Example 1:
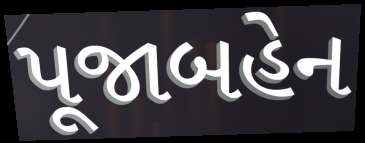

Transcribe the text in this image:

પૂજાબહેન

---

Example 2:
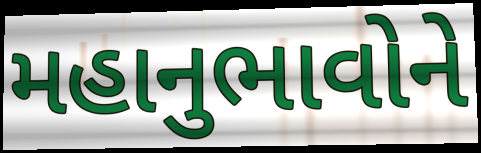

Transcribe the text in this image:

મહાનુભાવોને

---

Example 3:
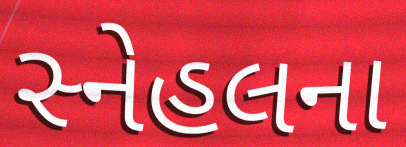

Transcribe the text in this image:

સ્નેહલના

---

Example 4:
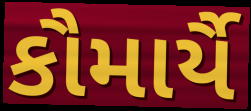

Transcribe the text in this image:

કૌમાર્યૈ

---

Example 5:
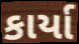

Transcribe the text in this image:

કાર્યા